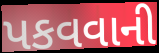
પકવવાની